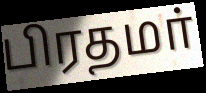
பிரதமர்